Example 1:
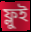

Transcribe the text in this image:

ফ্লুই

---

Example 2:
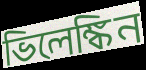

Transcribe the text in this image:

ভিলেঙ্কিন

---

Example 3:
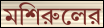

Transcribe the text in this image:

মশিরুলের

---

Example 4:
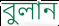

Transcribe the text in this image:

বুলান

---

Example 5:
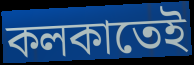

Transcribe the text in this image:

কলকাতেই